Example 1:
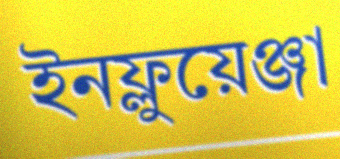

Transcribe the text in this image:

ইনফ্লুয়েঞ্জা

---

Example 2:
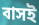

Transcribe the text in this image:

বাসই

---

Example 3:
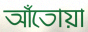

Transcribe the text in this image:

আঁতোয়া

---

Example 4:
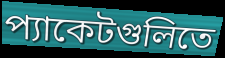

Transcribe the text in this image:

প্যাকেটগুলিতে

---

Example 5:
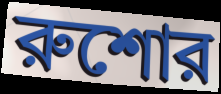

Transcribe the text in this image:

রুশোর